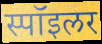
स्पॉइलर